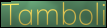
Tamboli